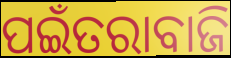
ପଇଁତରାବାଜି